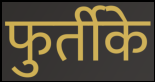
फुर्तीके